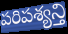
పరిపశ్యన్తి